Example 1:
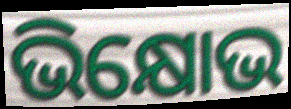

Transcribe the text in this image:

ଭିକ୍ଷୋଭ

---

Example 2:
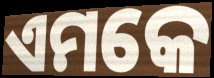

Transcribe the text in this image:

ଏମକେ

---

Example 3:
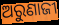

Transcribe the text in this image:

ଅରୁଣାଜୀ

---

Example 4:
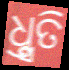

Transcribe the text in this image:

ଧ୍ତ୍ସତି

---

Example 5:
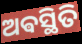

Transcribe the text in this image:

ଅଵସ୍ଥିତି